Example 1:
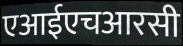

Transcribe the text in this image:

एआईएचआरसी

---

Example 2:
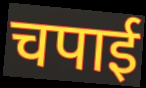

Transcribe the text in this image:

चपाई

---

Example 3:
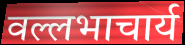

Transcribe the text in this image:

वल्लभाचार्य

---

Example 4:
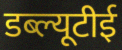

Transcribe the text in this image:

डब्ल्यूटीई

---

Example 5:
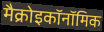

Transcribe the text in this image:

मैक्रोइकॉनॉमिक